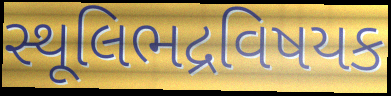
સ્થૂલિભદ્રવિષયક